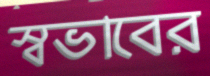
স্বভাবের